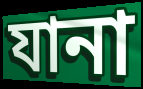
যানা